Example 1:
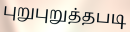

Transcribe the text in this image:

புறுபுறுத்தபடி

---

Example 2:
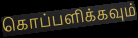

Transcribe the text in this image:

கொப்பளிக்கவும்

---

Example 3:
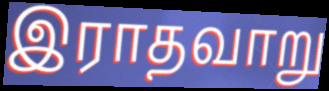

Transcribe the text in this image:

இராதவாறு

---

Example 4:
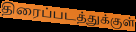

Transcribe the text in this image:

திரைப்படத்துக்குள்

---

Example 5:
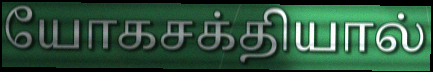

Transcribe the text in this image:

யோகசக்தியால்